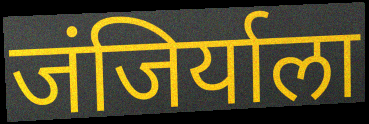
जंजिर्याला